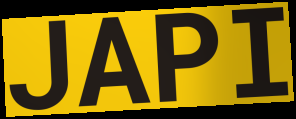
JAPI